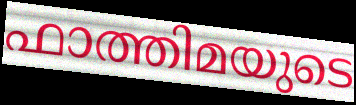
ഫാത്തിമയുടെ